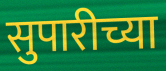
सुपारीच्या